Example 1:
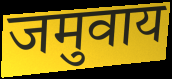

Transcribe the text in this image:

जमुवाय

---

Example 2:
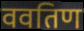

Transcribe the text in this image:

ववतिण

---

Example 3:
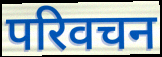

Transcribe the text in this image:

परिवचन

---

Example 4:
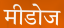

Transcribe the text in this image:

मीडोज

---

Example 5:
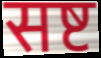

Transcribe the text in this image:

सष्ट